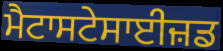
ਮੈਟਾਸਟੇਸਾਈਜ਼ਡ